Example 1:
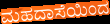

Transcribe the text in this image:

ಮಹದಾಸೆಯಿಂದ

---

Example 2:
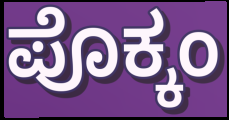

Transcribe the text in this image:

ಪೊಕ್ಕಂ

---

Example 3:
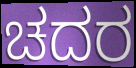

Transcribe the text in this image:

ಚದರ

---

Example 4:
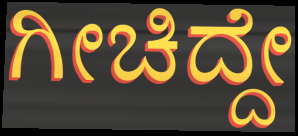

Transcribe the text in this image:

ಗೀಚಿದ್ದೇ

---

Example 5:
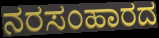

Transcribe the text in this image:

ನರಸಂಹಾರದ